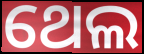
ଥେଲ